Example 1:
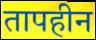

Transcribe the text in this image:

तापहीन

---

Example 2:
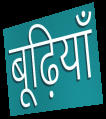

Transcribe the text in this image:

बूढ़ियाँ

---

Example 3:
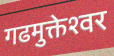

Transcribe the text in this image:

गढमुक्तेश्वर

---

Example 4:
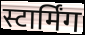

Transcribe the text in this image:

स्टार्मिंग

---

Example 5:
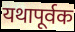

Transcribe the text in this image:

यथापूर्वक